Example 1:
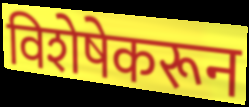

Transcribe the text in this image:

विशेषेकरून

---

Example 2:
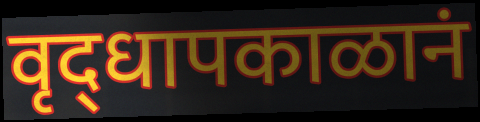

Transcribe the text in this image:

वृद्धापकाळानं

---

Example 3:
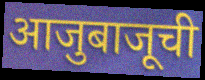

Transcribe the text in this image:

आजुबाजूची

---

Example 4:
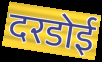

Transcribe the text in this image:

दरडोई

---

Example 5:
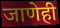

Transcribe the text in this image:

जाणेही